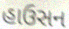
હાઉસન